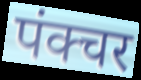
पंक्चर